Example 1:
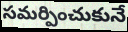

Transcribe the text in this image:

సమర్పించుకునే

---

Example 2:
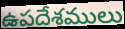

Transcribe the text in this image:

ఉపదేశములు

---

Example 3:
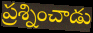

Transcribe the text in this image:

ప్రశ్నించాడు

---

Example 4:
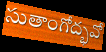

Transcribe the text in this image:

సుతాంగోద్భవో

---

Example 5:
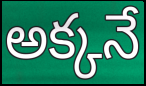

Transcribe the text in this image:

అక్కనే